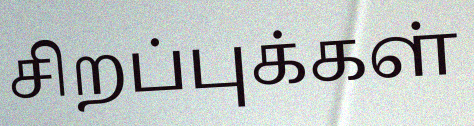
சிறப்புக்கள்